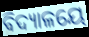
ବିଦ୍ୟାଳୟେ